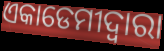
ଏକାଡେମୀଦ୍ୱାରା